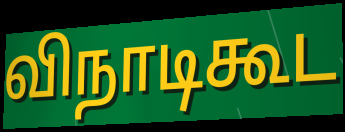
விநாடிகூட